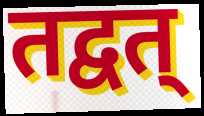
तद्वत्